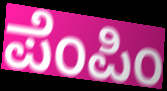
ಪೆಂಪಿಂ